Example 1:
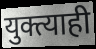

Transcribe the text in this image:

युक्त्याही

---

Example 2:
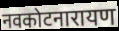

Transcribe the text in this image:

नवकोटनारायण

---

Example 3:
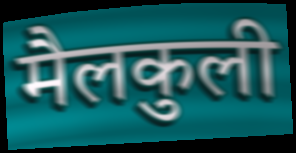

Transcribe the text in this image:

मैलकुली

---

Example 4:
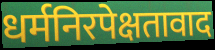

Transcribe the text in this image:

धर्मनिरपेक्षतावाद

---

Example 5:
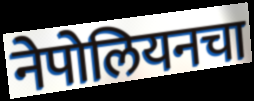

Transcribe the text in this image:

नेपोलियनचा